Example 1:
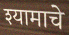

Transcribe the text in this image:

श्यामाचे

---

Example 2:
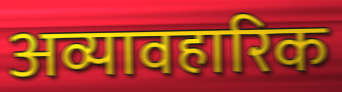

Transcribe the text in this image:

अव्यावहारिक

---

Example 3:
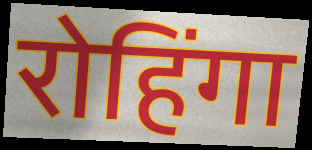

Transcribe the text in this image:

रोहिंगा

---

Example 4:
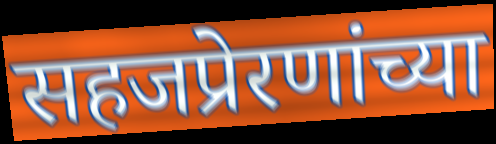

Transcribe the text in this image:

सहजप्रेरणांच्या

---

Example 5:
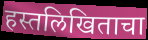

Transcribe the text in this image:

हस्तलिखिताचा